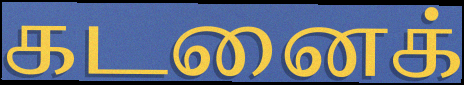
கடனைக்